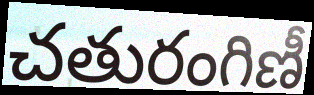
చతురంగిణీ